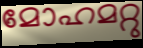
മോഹമറ്റു